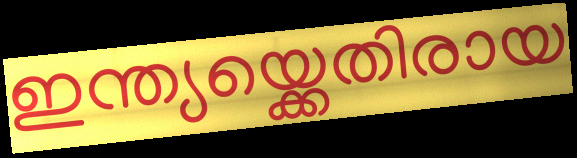
ഇന്ത്യയ്ക്കെതിരായ